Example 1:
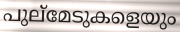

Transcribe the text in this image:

പുല്മേടുകളെയും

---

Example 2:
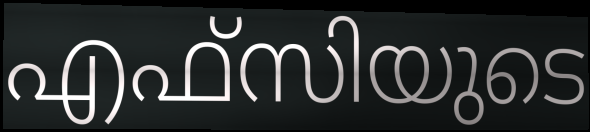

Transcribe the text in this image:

എഫ്സിയുടെ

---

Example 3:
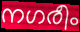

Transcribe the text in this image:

നഗരീം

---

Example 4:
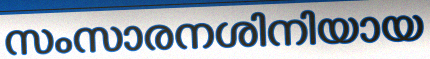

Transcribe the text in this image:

സംസാരനശിനിയായ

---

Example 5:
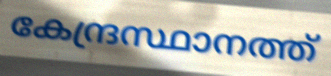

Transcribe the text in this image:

കേന്ദ്രസ്ഥാനത്ത്